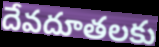
దేవదూతలకు